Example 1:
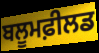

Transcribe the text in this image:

ਬਲੂਮਫ਼ੀਲਡ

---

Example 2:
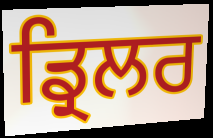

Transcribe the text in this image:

ਡ੍ਰਿਲਰ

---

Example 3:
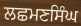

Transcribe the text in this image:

ਲਛਮਣਸਿੰਘ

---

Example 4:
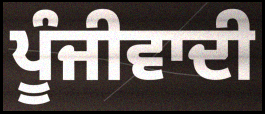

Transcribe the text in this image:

ਪੂੰਜੀਵਾਦੀ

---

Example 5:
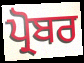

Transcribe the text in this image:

ਪ੍ਰੋਬਰ